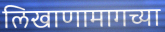
लिखाणामागच्या